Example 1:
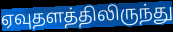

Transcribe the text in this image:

ஏவுதளத்திலிருந்து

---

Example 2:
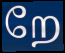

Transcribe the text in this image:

றே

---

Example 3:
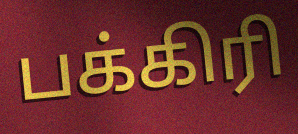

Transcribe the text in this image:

பக்கிரி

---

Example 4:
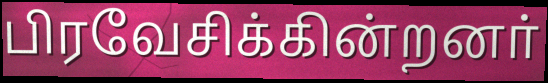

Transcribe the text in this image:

பிரவேசிக்கின்றனர்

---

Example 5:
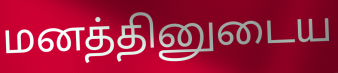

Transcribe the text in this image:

மனத்தினுடைய